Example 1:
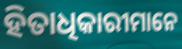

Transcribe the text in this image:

ହିତାଧିକାରୀମାନେ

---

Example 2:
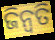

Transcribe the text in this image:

ଜିନ୍ୱତି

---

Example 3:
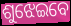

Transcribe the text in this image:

ଶୁଝେଇବେ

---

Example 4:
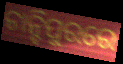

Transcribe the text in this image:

ଚାନ୍ଦିପୁରରେ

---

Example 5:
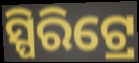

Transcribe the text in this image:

ସ୍ପିରିଟ୍ରେ